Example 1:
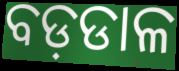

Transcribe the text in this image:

ବଡ଼ଡାଳ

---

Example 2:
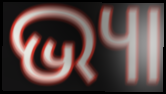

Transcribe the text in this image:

ଭ୍ୟା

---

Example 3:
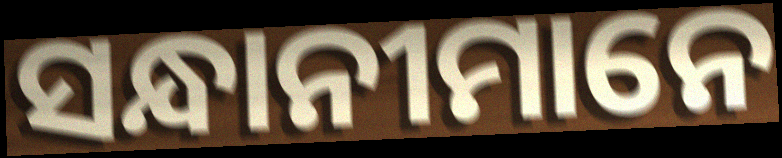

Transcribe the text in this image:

ସନ୍ଧାନୀମାନେ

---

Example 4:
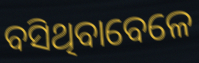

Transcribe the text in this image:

ବସିଥିବାବେଳେ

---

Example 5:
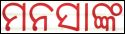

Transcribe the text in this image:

ମନସାଙ୍କ